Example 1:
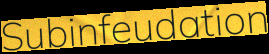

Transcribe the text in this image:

Subinfeudation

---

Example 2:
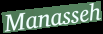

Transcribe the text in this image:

Manasseh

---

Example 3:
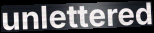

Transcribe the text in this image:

unlettered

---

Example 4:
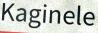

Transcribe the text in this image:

Kaginele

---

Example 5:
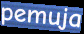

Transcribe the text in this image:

pemuja